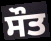
ਸੌਤ